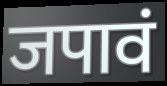
जपावं